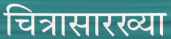
चित्रासारख्या